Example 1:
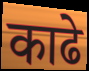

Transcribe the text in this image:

काढे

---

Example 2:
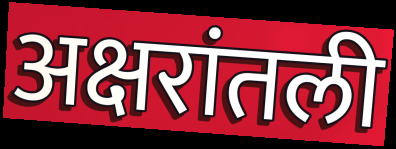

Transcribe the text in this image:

अक्षरांतली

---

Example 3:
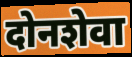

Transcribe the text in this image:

दोनशेवा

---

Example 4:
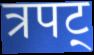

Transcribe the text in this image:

त्रपट्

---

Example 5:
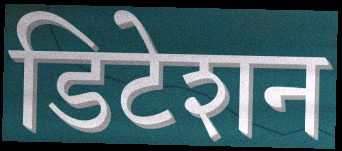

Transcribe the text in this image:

डिटेशन